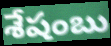
శేషంబు